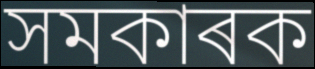
সমকাৰক